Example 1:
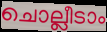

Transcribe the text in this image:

ചൊല്ലീടാം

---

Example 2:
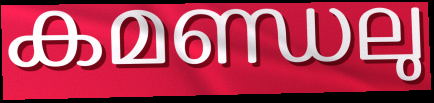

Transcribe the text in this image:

കമണ്ഡലു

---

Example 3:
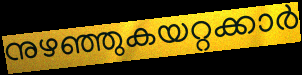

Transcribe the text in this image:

നുഴഞ്ഞുകയറ്റക്കാർ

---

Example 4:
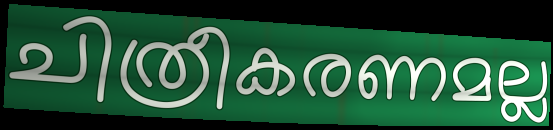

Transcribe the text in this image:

ചിത്രീകരണമല്ല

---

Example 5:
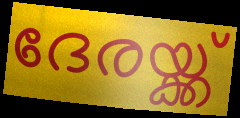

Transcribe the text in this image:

ദേരയ്ക്ക്